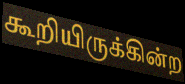
கூறியிருக்கின்ற